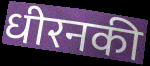
धीरनकी